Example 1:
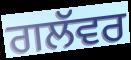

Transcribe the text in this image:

ਗਲੱਵਰ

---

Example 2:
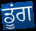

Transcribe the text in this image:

ਡੂਂਗ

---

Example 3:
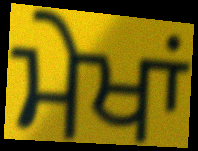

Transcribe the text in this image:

ਮੇਖਾਂ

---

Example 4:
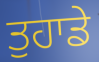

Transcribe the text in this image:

ਤੁਹਾਡੇ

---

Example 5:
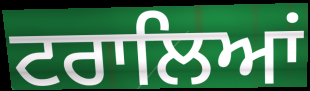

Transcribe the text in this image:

ਟਰਾਲਿਆਂ